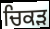
ਚਿਕੜ